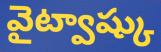
వైట్వాష్కు